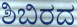
ಶಿಬಿರದ